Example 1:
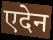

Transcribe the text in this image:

एदेन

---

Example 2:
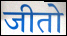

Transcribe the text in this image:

जीतो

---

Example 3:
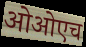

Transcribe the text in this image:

ओओएच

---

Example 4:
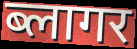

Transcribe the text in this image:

ब्लागर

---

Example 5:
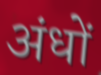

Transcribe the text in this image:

अंधों